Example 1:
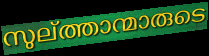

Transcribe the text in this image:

സുല്ത്താന്മാരുടെ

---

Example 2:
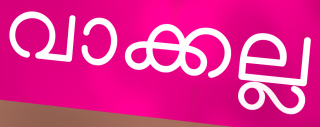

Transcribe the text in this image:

വാക്കല്ല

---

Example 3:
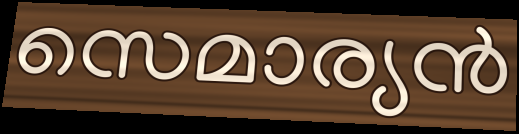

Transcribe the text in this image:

സെമാര്യൻ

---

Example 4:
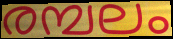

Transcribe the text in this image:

രമ്പലം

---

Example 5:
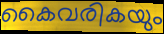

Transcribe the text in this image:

കൈവരികയും